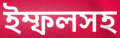
ইম্ফলসহ